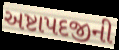
અષ્ટાપદજીની